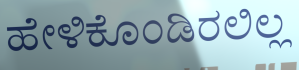
ಹೇಳಿಕೊಂಡಿರಲಿಲ್ಲ